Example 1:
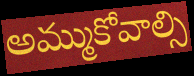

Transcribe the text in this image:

అమ్ముకోవాల్సి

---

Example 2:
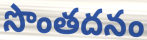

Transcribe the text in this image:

సొంతదనం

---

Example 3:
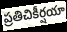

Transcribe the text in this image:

ప్రతిచికీర్షయా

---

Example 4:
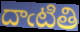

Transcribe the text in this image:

దాఁటితి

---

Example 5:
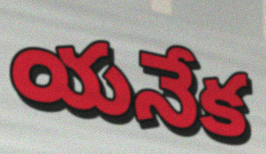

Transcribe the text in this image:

యనేక